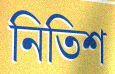
নিতিশ